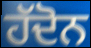
ਹੱਦੋਨ